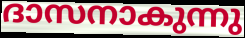
ദാസനാകുന്നു